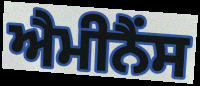
ਐਮੀਨੈਂਸ